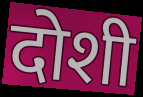
दोशी